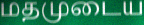
மதமுடைய